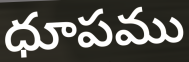
ధూపము